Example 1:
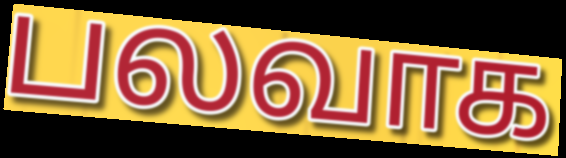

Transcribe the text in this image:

பலவாக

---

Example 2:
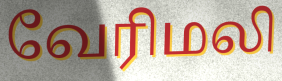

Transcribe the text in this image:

வேரிமலி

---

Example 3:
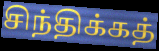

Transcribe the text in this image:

சிந்திக்கத்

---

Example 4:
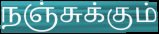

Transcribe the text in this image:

நஞ்சுக்கும்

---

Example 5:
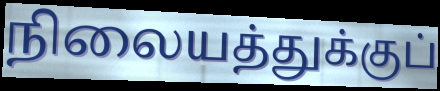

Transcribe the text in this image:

நிலையத்துக்குப்